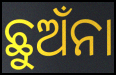
ଛୁଅଁନା